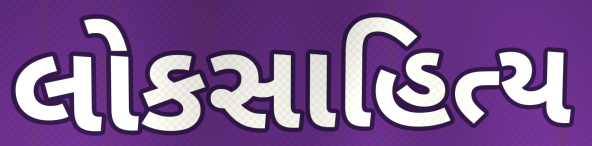
લોકસાહિત્ય